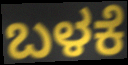
ಬಳಕೆ